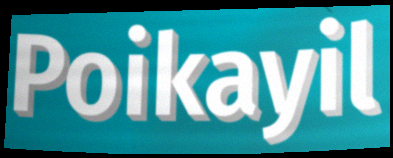
Poikayil